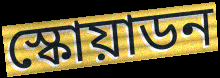
স্কোয়াডন